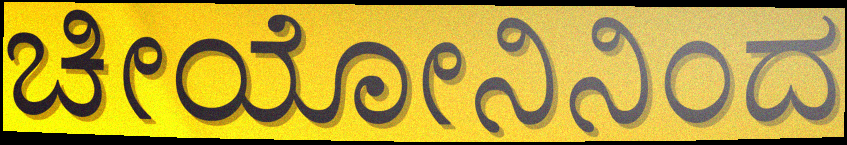
ಚೀಯೋನಿನಿಂದ